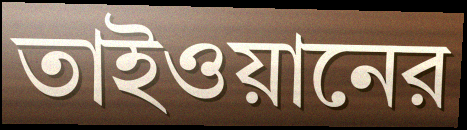
তাইওয়ানের